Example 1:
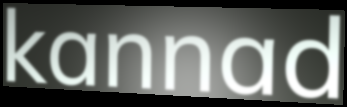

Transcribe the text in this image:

kannad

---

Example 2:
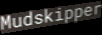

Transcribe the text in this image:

Mudskipper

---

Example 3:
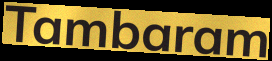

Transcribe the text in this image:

Tambaram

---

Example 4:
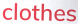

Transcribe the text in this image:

clothes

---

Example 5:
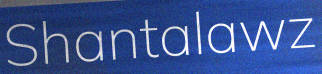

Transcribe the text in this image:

Shantalawz